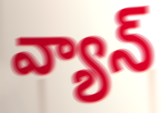
వ్యాన్